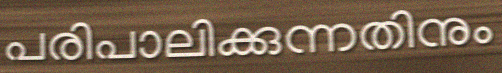
പരിപാലിക്കുന്നതിനും